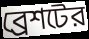
ব্রেশটের